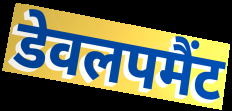
डेवलपमैंट